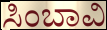
ಸಿಂಬಾವಿ